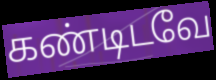
கண்டிடவே